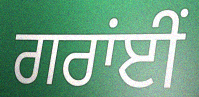
ਗਰਾਂਈਂ